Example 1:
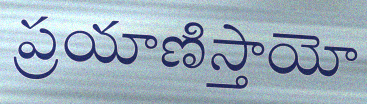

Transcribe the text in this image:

ప్రయాణిస్తాయో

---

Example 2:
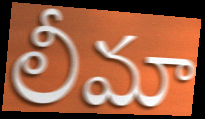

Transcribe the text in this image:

లీమా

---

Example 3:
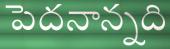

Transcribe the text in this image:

పెదనాన్నది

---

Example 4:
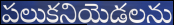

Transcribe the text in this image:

పలుకనియెడలను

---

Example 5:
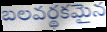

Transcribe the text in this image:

బలవర్థకమైన